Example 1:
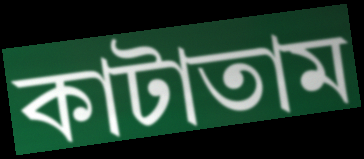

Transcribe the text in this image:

কাটাতাম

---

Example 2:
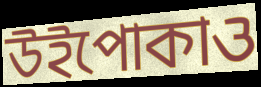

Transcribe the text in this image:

উইপোকাও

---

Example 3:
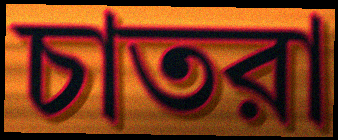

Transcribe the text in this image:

চাতরা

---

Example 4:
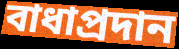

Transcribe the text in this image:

বাধাপ্রদান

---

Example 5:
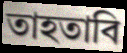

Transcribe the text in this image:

তাহতাবি